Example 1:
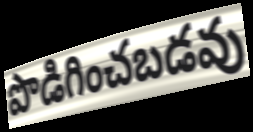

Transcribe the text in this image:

పొడిగించబడవు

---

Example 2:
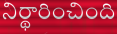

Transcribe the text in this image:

నిర్థారించింది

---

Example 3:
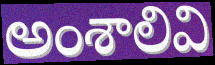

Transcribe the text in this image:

అంశాలివి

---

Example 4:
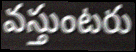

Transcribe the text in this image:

వస్తుంటరు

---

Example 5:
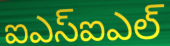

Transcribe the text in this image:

ఐఎస్ఐఎల్